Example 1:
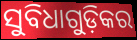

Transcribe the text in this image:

ସୁବିଧାଗୁଡ଼ିକର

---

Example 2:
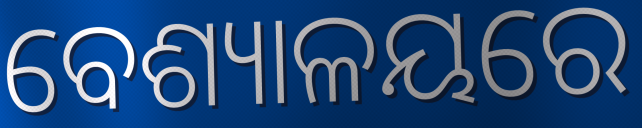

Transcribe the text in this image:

ବେଶ୍ୟାଳୟରେ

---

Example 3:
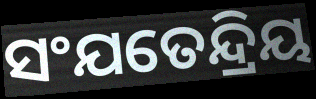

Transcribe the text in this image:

ସଂଯତେନ୍ଦ୍ରିୟ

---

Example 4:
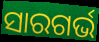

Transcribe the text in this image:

ସାରଗର୍ଭ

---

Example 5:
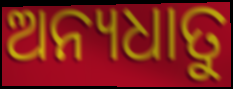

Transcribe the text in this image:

ଅନ୍ୟଧାତୁ